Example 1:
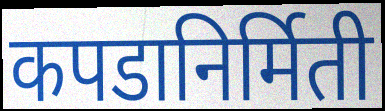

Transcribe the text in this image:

कपडानिर्मिती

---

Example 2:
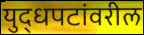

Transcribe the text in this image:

युद्धपटांवरील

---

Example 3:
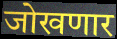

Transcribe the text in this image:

जोखणार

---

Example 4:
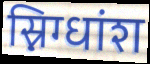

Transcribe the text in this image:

स्निग्धांश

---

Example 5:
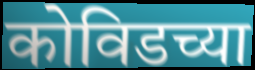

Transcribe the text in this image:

कोविडच्या